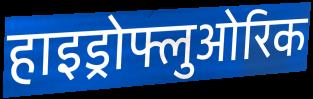
हाइड्रोफ्लुओरिक